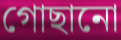
গোছানো